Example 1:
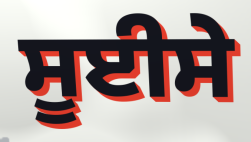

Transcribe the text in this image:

ਸੂਈਸੇ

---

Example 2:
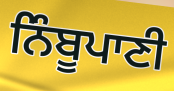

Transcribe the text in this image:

ਨਿੰਬੂਪਾਣੀ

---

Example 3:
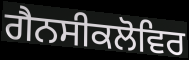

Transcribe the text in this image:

ਗੈਨਸੀਕਲੋਵਿਰ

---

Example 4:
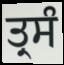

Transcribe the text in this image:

ਤ੍ਰਸੰ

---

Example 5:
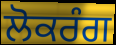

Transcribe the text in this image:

ਲੋਕਰੰਗ